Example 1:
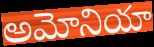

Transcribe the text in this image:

అమోనియా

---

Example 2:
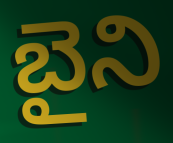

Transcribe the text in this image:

బైని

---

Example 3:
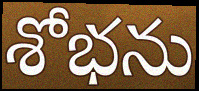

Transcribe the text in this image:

శోభను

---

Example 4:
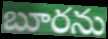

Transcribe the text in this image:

బూరను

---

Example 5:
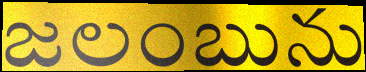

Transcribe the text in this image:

జలంబును